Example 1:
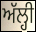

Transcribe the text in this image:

ਅੱਲ੍ਹੀ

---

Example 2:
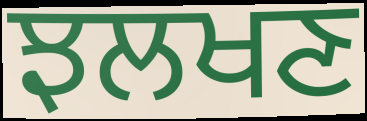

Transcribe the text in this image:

ਝਲਖਣ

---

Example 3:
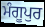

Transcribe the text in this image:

ਮੰਗੂਪੁਰ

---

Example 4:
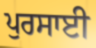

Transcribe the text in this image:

ਪੁਰਸਾਈ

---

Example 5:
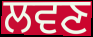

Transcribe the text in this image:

ਲਵਣ